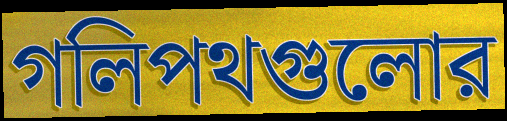
গলিপথগুলোর